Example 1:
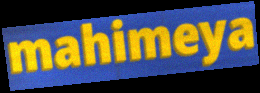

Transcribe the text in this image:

mahimeya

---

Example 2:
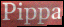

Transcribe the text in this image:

Pippa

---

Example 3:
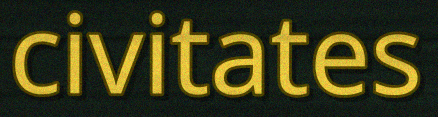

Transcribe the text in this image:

civitates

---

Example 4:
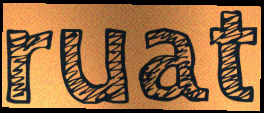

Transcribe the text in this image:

ruat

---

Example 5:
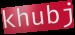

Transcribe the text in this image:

khubj